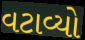
વટાવ્યો